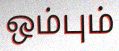
ஒம்பும்